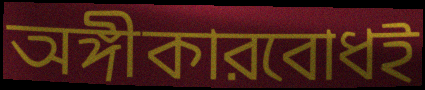
অঙ্গীকারবোধই